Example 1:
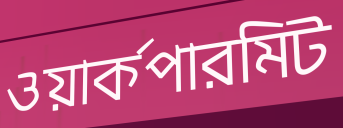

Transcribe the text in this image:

ওয়ার্কপারমিট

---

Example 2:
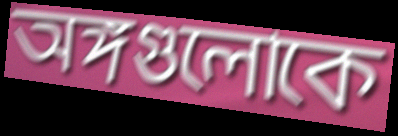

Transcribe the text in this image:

অঙ্গগুলোকে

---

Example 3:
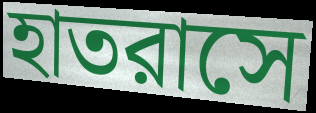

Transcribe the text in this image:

হাতরাসে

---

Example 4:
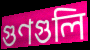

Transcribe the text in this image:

গুণগুলি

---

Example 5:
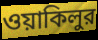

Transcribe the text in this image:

ওয়াকিলুর